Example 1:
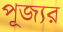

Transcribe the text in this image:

পূজ্যর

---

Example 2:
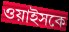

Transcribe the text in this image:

ওয়াইসকে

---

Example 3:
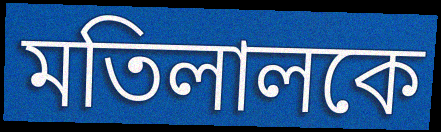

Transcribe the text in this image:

মতিলালকে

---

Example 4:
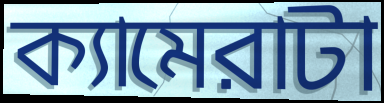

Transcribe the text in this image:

ক্যামেরাটা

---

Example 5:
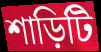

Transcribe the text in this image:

শাড়িটি